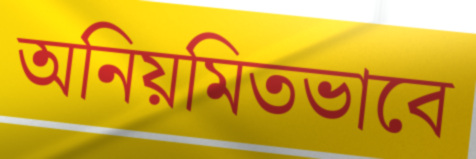
অনিয়মিতভাবে